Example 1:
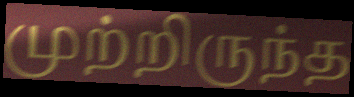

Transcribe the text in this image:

முற்றிருந்த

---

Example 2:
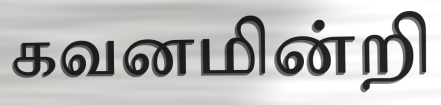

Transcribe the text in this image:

கவனமின்றி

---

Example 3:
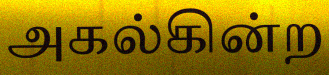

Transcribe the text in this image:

அகல்கின்ற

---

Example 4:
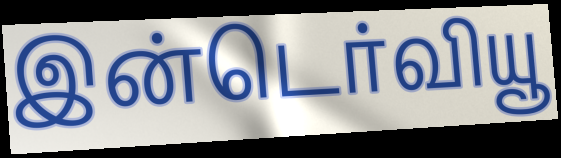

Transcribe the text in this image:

இன்டெர்வியூ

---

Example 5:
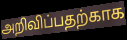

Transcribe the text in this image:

அறிவிப்பதற்காக